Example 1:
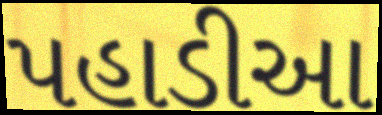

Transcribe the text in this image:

પહાડીઆ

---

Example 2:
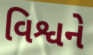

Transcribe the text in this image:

વિશ્વને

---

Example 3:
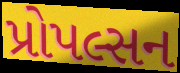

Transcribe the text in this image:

પ્રોપલ્સન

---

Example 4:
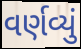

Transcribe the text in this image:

વર્ણવ્યું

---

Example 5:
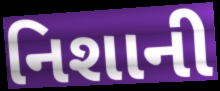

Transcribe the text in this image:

નિશાની